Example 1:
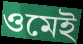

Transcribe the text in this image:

ওমেই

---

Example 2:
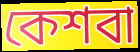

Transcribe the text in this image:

কেশবা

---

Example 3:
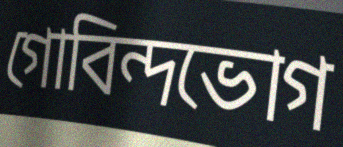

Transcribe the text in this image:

গোবিন্দভোগ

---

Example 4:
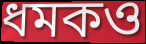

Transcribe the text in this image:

ধমকও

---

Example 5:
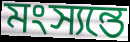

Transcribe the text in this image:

মংস্যন্তে